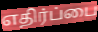
எதிர்ப்பை